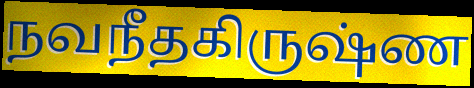
நவநீதகிருஷ்ண